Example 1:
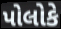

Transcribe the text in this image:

પોલોકે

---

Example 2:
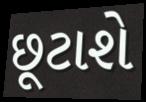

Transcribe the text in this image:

છૂટાશે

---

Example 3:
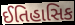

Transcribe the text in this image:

ઈતિહાસિક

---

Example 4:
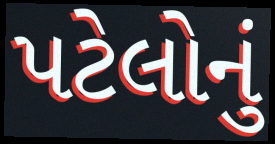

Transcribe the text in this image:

પટેલોનું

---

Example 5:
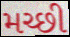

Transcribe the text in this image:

મચ્છી